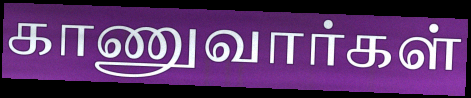
காணுவார்கள்